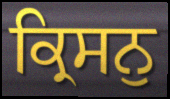
ਕ੍ਰਿਸਨੁ